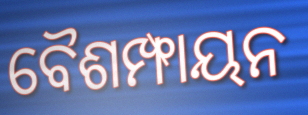
ବୈଶମ୍ଫାୟନ